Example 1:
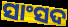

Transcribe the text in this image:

ସାଂସଦ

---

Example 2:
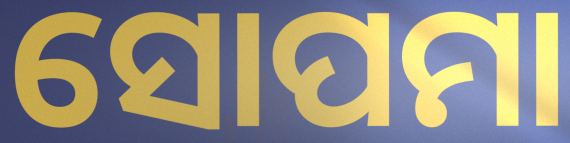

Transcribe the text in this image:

ସୋପମା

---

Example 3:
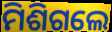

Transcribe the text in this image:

ମିଶିଗଲେ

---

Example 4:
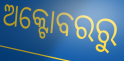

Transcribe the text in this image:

ଅକ୍ଟୋବରରୁ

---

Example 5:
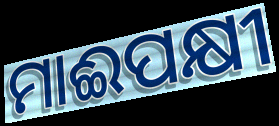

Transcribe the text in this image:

ମାଈପକ୍ଷୀ